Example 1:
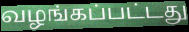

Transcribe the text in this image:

வழங்கப்பட்டது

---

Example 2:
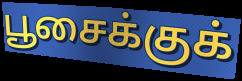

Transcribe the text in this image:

பூசைக்குக்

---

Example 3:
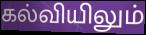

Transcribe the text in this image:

கல்வியிலும்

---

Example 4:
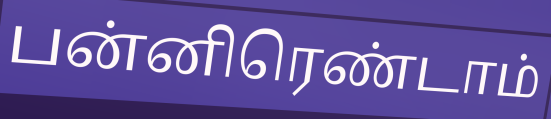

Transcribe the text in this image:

பன்னிரெண்டாம்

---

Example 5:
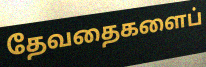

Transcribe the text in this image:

தேவதைகளைப்